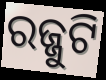
ରଜ୍ଜୁଟି